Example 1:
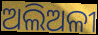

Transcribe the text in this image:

ଅଲିଅଳୀ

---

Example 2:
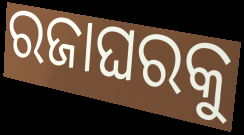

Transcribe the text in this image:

ରଜାଘରକୁ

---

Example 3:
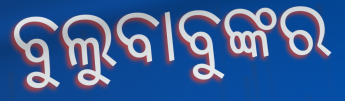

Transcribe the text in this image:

ବୁଲୁବାବୁଙ୍କର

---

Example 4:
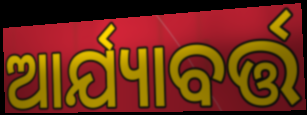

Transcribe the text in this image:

ଆର୍ଯ୍ୟାବର୍ତ୍ତ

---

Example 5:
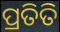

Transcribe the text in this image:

ପ୍ରତିତି